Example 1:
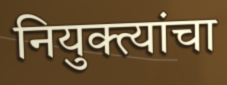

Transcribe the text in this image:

नियुक्त्यांचा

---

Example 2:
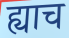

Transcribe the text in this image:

ह्याच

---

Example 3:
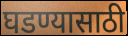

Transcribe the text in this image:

घडण्यासाठी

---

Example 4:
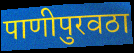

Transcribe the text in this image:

पाणीपुरवठा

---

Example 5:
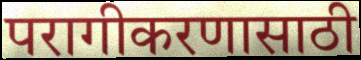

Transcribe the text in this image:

परागीकरणासाठी